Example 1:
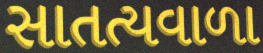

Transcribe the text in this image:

સાતત્યવાળા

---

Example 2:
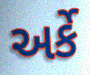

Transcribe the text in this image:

અર્કે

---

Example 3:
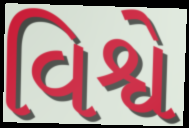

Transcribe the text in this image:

વિશ્વે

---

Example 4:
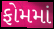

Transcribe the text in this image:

ફોમમાં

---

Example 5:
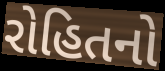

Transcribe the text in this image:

રોહિતનો